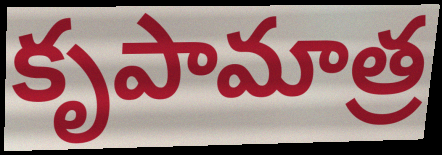
కృపామాత్ర